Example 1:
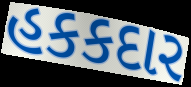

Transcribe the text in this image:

હકકદાર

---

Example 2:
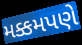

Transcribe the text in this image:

મક્કમપણે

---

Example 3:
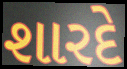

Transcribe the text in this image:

શારદે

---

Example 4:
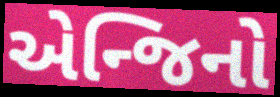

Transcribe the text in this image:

એન્જિનો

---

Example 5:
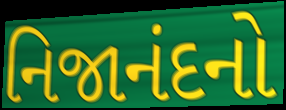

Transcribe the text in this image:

નિજાનંદનો